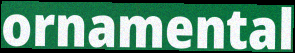
ornamental